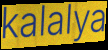
kalalya